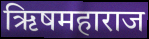
ॠिषमहाराज